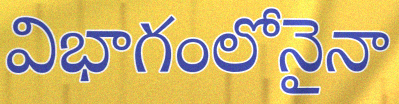
విభాగంలోనైనా